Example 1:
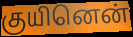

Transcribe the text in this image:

குயினென்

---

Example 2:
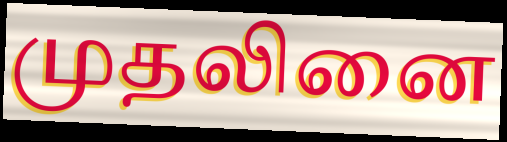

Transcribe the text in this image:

முதலினை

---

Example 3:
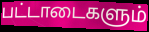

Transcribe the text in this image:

பட்டாடைகளும்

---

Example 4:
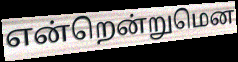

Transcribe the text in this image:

என்றென்றுமென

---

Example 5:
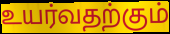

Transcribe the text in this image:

உயர்வதற்கும்